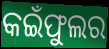
କଇଁଫୁଲର